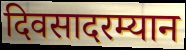
दिवसादरम्यान